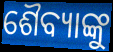
ଶୈବ୍ୟାଙ୍କୁ